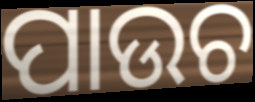
ପାଉଚ